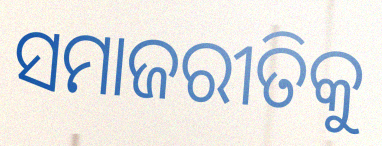
ସମାଜରୀତିକୁ